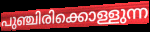
പുഞ്ചിരിക്കൊള്ളുന്ന